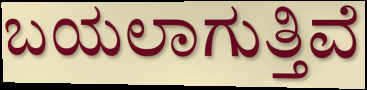
ಬಯಲಾಗುತ್ತಿವೆ